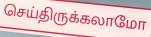
செய்திருக்கலாமோ